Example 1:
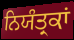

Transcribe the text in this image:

ਨਿਯੰਤ੍ਰਕਾਂ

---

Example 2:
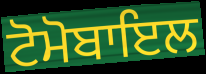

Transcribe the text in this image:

ਟੋਮੋਬਾਇਲ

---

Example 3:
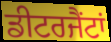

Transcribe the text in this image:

ਡੀਟਰਜੈਂਟਾਂ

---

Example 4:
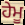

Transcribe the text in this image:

ਹੇਮੂ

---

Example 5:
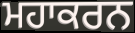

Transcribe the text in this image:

ਮਹਾਕਰਨ